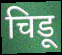
चिडू